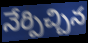
నేర్పిచ్చిన